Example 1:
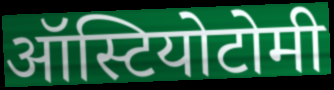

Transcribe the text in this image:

ऑस्टियोटोमी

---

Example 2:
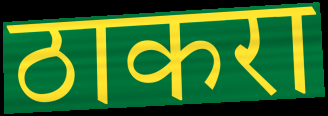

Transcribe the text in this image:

ठाकरा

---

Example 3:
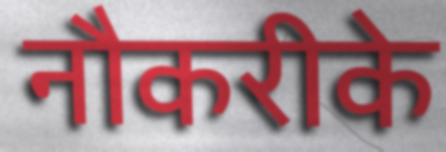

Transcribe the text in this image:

नौकरीके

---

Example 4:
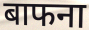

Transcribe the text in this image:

बाफना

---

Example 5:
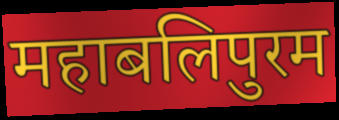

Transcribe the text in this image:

महाबलिपुरम